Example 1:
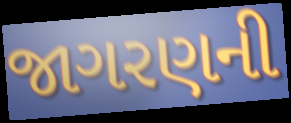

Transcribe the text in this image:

જાગરણની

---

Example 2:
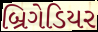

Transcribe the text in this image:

બ્રિગેડિયર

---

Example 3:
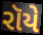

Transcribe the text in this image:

રૉયે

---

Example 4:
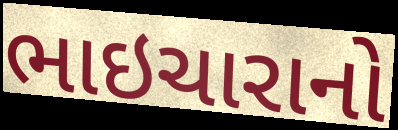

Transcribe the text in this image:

ભાઇચારાનો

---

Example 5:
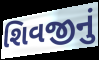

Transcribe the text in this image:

શિવજીનું